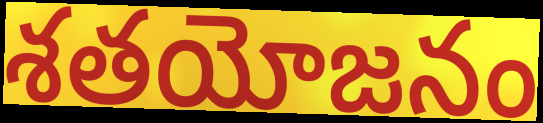
శతయోజనం